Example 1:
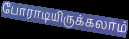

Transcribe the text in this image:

போராடியிருக்கலாம்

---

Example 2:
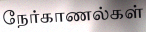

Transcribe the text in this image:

நேர்காணல்கள்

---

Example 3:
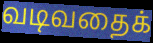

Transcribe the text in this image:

வடிவதைக்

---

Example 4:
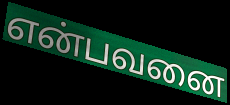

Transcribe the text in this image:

என்பவனை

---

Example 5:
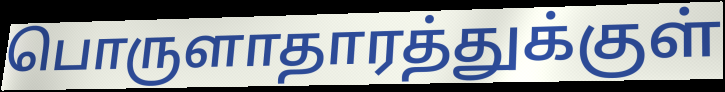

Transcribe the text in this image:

பொருளாதாரத்துக்குள்